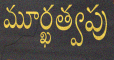
మూర్ఖత్వపు